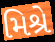
મિશ્રે